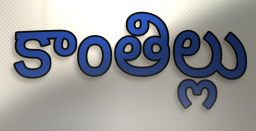
కాంతిల్లు